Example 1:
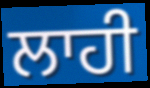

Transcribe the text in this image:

ਲਾਹੀ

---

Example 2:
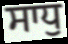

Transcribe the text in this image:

ਸਾਧੁ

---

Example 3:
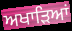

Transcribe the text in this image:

ਅਖਾੜਿਆਂ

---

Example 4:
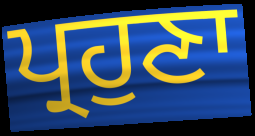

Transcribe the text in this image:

ਪ੍ਰਹੁਣਾ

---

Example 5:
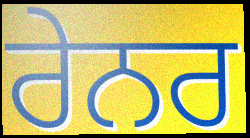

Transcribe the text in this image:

ਰੇਨਰ